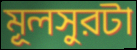
মূলসুরটা